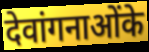
देवांगनाओंके